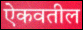
ऐकवतील